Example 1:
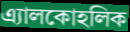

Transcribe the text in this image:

এ্যালকোহলিক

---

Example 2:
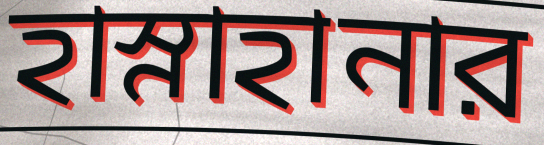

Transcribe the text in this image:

হাস্নাহানার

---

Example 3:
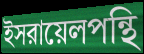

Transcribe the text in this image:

ইসরায়েলপন্থি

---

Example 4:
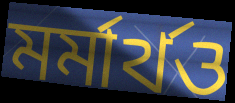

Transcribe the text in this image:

মর্মার্থও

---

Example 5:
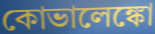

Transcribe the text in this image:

কোভালেঙ্কো